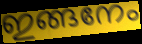
ഇങ്ങനേം